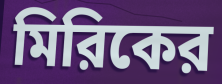
মিরিকের